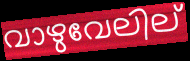
വാഴുവേലില്